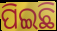
ପିଇଛି